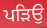
ਪੜਿਉ